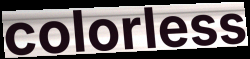
colorless